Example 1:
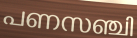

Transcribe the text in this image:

പണസഞ്ചി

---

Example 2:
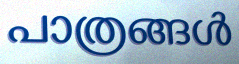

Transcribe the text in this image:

പാത്രങ്ങൾ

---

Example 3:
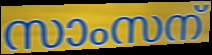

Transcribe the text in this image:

സാംസന്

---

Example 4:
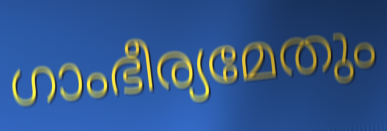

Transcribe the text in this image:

ഗാംഭീര്യമേതും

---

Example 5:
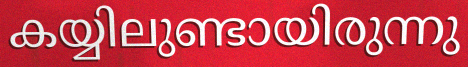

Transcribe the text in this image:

കയ്യിലുണ്ടായിരുന്നു